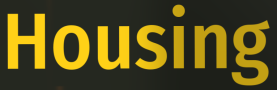
Housing